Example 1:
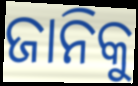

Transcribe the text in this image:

ଜାନିକୁ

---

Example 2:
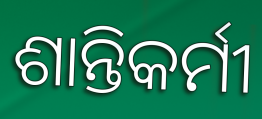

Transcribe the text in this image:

ଶାନ୍ତିକର୍ମୀ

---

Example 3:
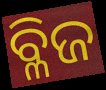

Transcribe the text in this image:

ବ୍ଳିଜ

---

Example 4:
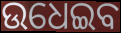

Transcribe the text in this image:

ଉଧେଇବ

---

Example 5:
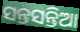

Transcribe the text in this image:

ସନ୍ତସନ୍ତିଆ